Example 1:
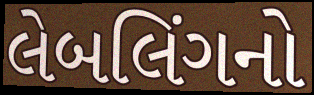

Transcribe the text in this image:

લેબલિંગનો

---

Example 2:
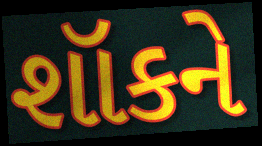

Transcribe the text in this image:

શૉકને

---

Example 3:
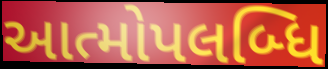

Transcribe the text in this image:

આત્મોપલબ્ધિ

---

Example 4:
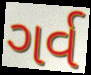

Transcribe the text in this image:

ગર્વ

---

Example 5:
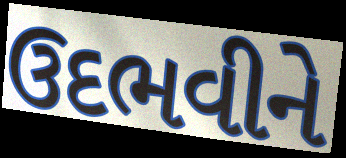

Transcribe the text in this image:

ઉદભવીને